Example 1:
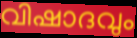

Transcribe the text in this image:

വിഷാദവും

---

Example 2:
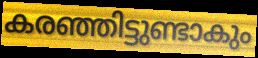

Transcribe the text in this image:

കരഞ്ഞിട്ടുണ്ടാകും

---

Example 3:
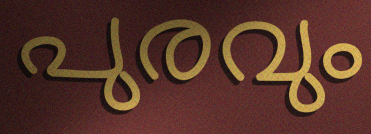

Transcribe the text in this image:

പുരവും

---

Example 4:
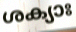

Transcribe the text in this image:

ശക്യാഃ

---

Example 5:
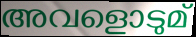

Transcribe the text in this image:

അവളൊടുമ്